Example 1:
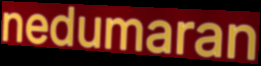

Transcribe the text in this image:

nedumaran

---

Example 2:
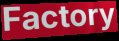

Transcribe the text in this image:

Factory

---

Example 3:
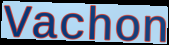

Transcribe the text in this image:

Vachon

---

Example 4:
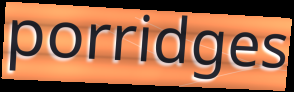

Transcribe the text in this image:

porridges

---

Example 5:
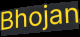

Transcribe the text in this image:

Bhojan